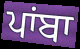
ਪਾਂਬਾ